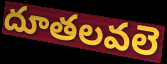
దూతలవలె